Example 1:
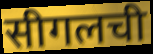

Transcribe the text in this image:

सीगलची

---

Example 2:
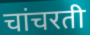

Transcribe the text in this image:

चांचरती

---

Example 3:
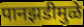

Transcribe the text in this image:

पानझडीमुळे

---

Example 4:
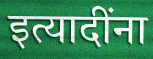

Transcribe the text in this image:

इत्यादींना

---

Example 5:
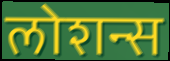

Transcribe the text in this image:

लोशन्स